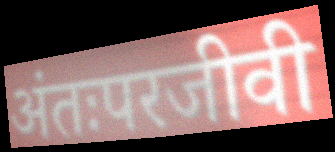
अंतःपरजीवी